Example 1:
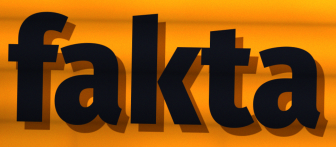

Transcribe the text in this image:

fakta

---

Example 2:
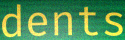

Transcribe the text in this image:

dents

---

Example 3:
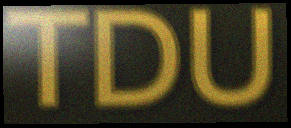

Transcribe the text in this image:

TDU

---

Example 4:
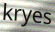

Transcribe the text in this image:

kryes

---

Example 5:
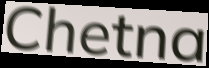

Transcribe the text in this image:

Chetna